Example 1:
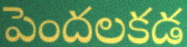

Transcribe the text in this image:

పెందలకడ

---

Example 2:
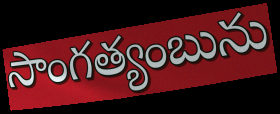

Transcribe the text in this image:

సాంగత్యంబును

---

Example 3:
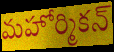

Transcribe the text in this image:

మహోర్మికన్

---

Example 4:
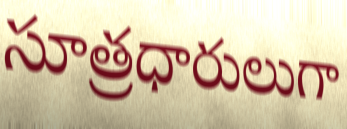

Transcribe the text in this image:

సూత్రధారులుగా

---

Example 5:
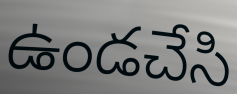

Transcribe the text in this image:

ఉండచేసి